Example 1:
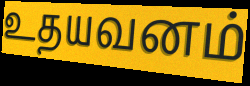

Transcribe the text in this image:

உதயவனம்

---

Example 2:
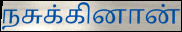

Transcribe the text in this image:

நசுக்கினான்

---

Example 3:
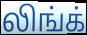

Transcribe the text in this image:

லிங்க்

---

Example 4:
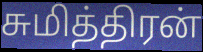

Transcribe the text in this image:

சுமித்திரன்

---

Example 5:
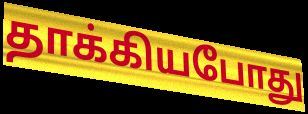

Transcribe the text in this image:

தாக்கியபோது